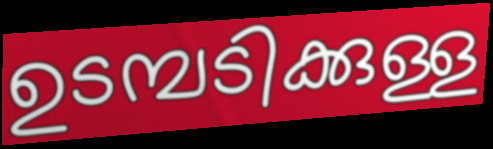
ഉടമ്പടിക്കുള്ള